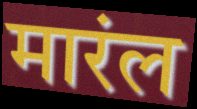
मारंल